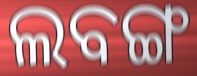
ଲବଙ୍ଗ